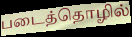
படைத்தொழில்